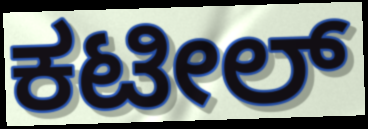
ಕಟೀಲ್